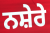
ਨਸ਼ੇਰੇ